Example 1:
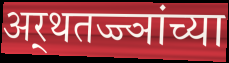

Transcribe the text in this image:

अर्थतज्ज्ञांच्या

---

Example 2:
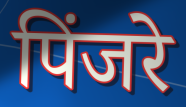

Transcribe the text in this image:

पिंजरे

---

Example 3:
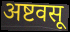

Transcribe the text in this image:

अष्टवसू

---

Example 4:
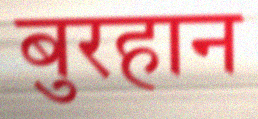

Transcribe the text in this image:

बुरहान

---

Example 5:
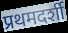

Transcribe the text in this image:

प्रथमदर्शी